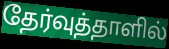
தேர்வுத்தாளில்